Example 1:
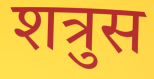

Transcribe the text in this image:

शत्रुस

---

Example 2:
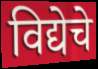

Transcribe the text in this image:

विद्येचे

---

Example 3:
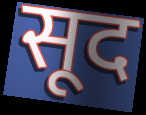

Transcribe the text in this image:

सूद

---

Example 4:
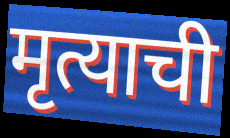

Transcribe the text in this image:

मृत्याची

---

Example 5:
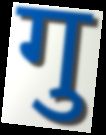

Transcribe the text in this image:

गु